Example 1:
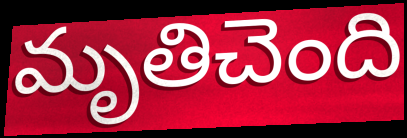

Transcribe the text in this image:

మృతిచెంది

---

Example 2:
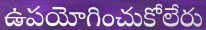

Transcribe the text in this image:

ఉపయోగించుకోలేరు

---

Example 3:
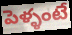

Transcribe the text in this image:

పెళ్ళంటే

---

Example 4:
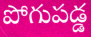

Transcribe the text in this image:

పోగుపడ్డ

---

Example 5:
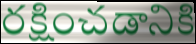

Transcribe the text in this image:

రక్షించడానికి